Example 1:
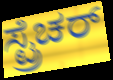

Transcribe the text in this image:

ಸ್ಟ್ರೆಚರ್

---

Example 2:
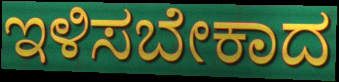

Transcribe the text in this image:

ಇಳಿಸಬೇಕಾದ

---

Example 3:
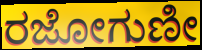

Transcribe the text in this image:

ರಜೋಗುಣೀ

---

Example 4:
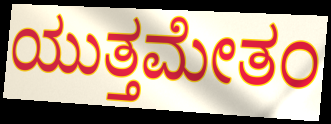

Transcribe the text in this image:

ಯುತ್ತಮೇತಂ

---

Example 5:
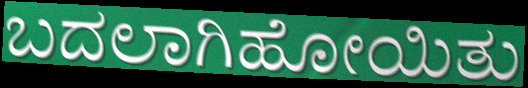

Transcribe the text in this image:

ಬದಲಾಗಿಹೋಯಿತು